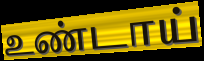
உண்டாய்